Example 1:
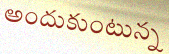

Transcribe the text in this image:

అందుకుంటున్న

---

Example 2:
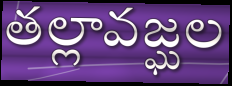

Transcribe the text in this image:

తల్లావజ్ఘల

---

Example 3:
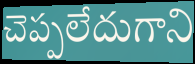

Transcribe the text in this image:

చెప్పలేదుగాని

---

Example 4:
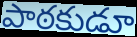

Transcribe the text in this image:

పాఠకుడూ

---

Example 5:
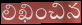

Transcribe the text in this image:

లిఖించిన